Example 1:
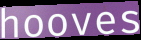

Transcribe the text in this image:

hooves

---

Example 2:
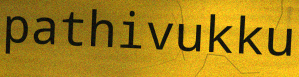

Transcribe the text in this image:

pathivukku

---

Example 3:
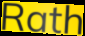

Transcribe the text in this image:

Rath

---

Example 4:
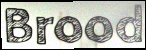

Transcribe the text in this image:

Brood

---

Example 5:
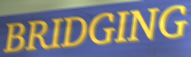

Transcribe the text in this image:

BRIDGING